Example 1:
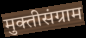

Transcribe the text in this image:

मुक्तीसंग्राम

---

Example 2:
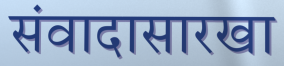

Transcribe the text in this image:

संवादासारखा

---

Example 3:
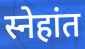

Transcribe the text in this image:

स्नेहांत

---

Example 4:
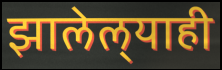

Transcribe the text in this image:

झालेल्याही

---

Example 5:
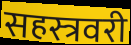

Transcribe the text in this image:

सहस्त्रवरी